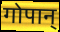
गोपान्